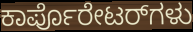
ಕಾರ್ಪೊರೇಟರ್‌ಗಳು